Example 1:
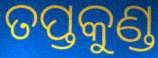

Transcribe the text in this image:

ତପ୍ତକୁଣ୍ଡ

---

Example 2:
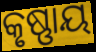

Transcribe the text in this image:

କୃଷ୍ଣାୟ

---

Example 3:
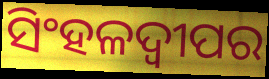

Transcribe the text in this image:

ସିଂହଳଦ୍ୱୀପର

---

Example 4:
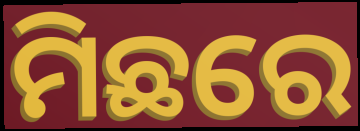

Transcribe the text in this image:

ମିଛରେ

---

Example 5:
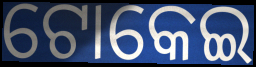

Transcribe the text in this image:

ଟୋକେଇ